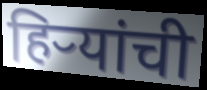
हिऱ्यांची